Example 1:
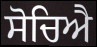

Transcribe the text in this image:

ਸੋਚਿਐ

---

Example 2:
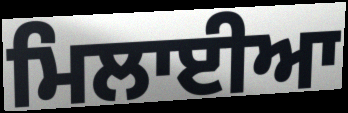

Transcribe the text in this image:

ਮਿਲਾਈਆ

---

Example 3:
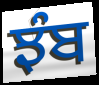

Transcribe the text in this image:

ਝੰਬ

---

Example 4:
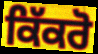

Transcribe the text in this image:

ਕਿੱਕਰੋ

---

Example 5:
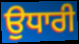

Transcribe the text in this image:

ਉਧਾਰੀ